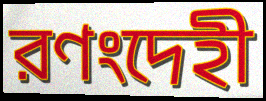
রণংদেহী